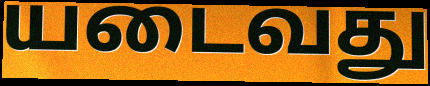
யடைவது